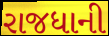
રાજધાની